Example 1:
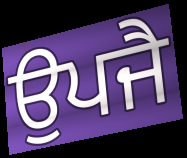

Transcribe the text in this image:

ਉਪਜੈ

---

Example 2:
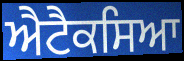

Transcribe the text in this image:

ਐਟੈਕਸਿਆ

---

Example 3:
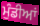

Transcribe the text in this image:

ਮੁੰਡੀਆਂ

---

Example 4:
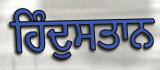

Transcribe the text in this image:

ਹਿੰਦੁਸਤਾਨ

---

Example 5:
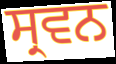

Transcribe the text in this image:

ਸ੍ਰਵਨ